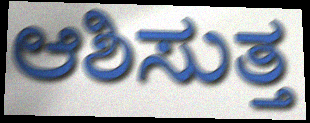
ಆಶಿಸುತ್ತ